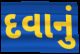
દવાનું